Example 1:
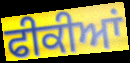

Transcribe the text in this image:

ਫੀਕੀਆਂ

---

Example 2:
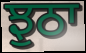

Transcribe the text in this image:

ਝੁਠਾ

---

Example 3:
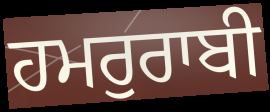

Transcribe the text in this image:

ਹਮਰੁਰਾਬੀ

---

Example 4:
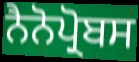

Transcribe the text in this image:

ਨੈਨੋਪ੍ਰੋਬਸ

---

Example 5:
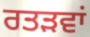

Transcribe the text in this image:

ਰਤੜਵਾਂ